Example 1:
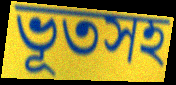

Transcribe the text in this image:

ভূতসহ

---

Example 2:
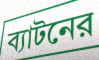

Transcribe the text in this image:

ব্যাটনের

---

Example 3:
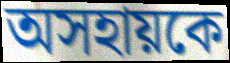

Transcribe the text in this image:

অসহায়কে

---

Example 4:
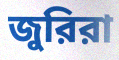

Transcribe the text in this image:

জুরিরা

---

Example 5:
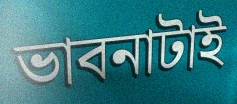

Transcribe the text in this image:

ভাবনাটাই